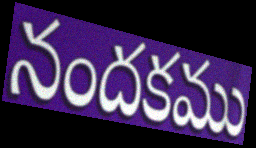
నందకము